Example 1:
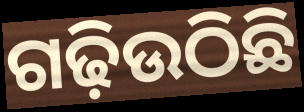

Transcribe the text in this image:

ଗଢ଼ିଉଠିଛି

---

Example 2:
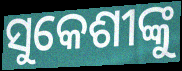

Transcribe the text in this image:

ସୁକେଶୀଙ୍କୁ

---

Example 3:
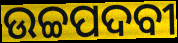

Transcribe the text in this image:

ଉଚ୍ଚପଦବୀ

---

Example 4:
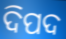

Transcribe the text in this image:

ଦିପଦ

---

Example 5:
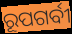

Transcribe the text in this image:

ରୂପଗର୍ବୀ